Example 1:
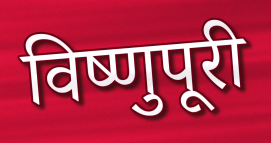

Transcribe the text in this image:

विष्णुपूरी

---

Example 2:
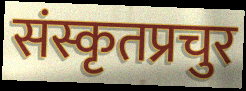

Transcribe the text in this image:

संस्कृतप्रचुर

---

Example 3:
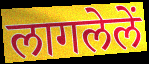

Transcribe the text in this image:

लागलेलें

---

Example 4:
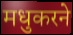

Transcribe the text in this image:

मधुकरने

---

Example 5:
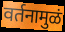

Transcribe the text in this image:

वर्तनामुळं